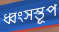
ধ্বংসস্তূপ